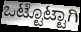
ಒಟ್ಟೊಟ್ಟಾಗಿ